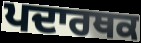
ਪਦਾਰਥਕ